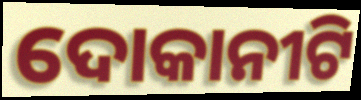
ଦୋକାନୀଟି